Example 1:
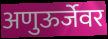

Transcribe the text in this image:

अणुऊर्जेवर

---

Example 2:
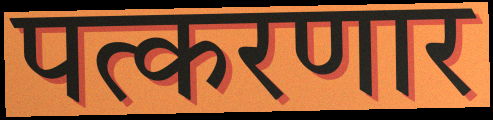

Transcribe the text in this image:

पत्करणार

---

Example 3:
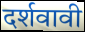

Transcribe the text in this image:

दर्शवावी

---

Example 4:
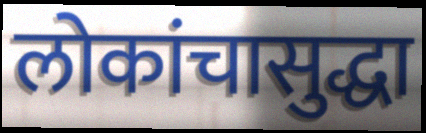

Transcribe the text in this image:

लोकांचासुद्धा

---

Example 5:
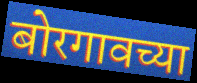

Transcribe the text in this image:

बोरगावच्या